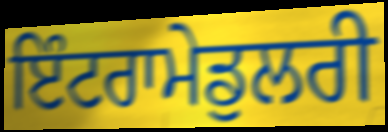
ਇੰਟਰਾਮੇਡੁਲਰੀ